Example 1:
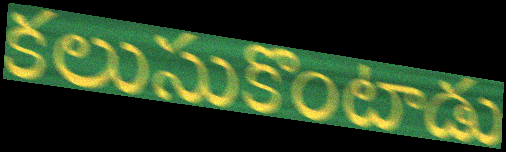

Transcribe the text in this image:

కలుసుకొంటాడు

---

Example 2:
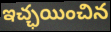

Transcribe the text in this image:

ఇచ్ఛయించిన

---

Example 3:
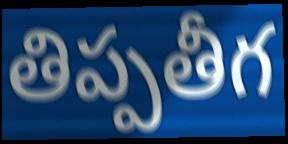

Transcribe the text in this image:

తిప్పతీగ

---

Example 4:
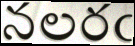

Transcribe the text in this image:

నలరఁ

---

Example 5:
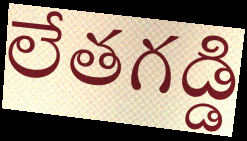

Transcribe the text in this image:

లేతగడ్డి